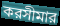
করসীমার